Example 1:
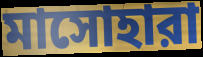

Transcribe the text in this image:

মাসোহারা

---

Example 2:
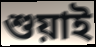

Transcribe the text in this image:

শুয়াই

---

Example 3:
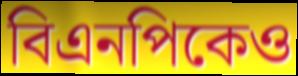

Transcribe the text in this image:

বিএনপিকেও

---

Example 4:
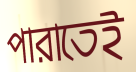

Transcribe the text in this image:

পারাতেই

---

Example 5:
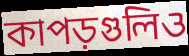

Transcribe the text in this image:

কাপড়গুলিও